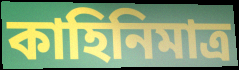
কাহিনিমাত্র